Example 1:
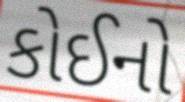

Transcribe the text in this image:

કોઈનો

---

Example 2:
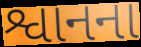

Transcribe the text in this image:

શ્વાનના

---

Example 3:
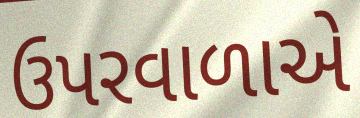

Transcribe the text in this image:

ઉપરવાળાએ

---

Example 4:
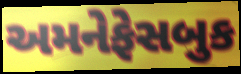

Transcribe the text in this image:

અમનેફેસબુક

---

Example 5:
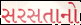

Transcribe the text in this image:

સરસતાનો